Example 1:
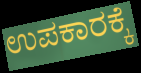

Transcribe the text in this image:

ಉಪಕಾರಕ್ಕೆ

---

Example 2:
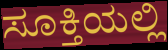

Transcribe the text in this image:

ಸೂಕ್ತಿಯಲ್ಲಿ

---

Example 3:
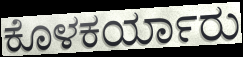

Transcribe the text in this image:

ಕೊಳಕರ್ಯಾರು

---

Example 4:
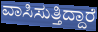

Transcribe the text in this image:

ವಾಸಿಸುತ್ತಿದ್ದಾರೆ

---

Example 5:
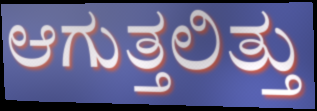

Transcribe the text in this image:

ಆಗುತ್ತಲಿತ್ತು